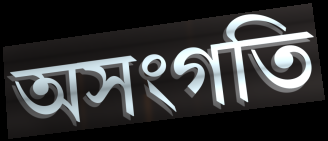
অসংগতি